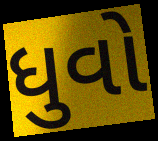
ધુવો